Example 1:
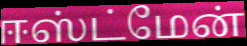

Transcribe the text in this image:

ஈஸ்ட்மேன்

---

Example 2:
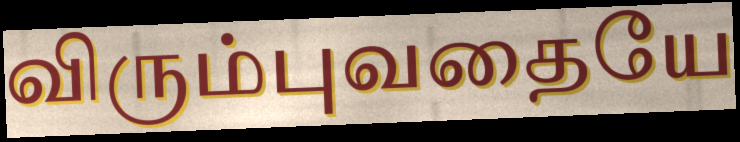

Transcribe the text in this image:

விரும்புவதையே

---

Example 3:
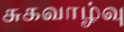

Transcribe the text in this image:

சுகவாழ்வு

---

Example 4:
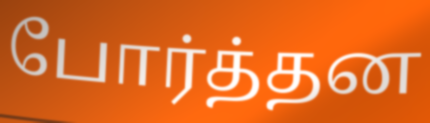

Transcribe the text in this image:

போர்த்தன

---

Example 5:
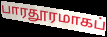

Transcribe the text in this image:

பாரதூரமாகப்